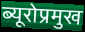
ब्यूरोप्रमुख